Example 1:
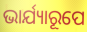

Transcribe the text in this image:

ଭାର୍ଯ୍ୟାରୂପେ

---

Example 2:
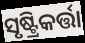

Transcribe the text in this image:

ସୃଷ୍ଟ୍ରିକର୍ତ୍ତା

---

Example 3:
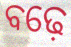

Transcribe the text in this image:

ବଢ଼େ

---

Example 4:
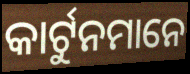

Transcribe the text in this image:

କାର୍ଟୁନମାନେ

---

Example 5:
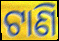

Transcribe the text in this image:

ଟାଣି